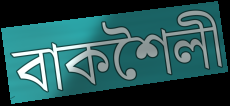
বাকশৈলী